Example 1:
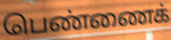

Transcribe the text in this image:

பெண்ணைக்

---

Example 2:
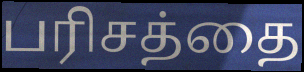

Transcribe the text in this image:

பரிசத்தை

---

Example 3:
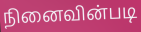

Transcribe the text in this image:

நினைவின்படி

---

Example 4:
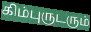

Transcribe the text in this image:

கிம்புருடரும்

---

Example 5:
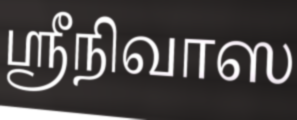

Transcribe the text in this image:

ஸ்ரீநிவாஸ